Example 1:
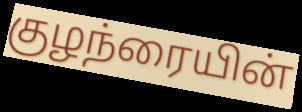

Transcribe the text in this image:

குழந்ரையின்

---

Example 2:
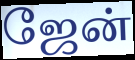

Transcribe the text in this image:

ஜேன்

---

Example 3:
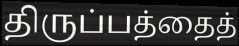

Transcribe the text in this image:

திருப்பத்தைத்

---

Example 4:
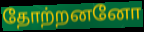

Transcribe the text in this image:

தோற்றனனோ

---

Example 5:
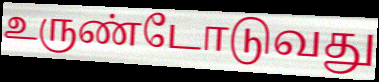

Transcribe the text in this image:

உருண்டோடுவது